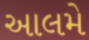
આલમે